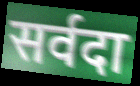
सर्वदा